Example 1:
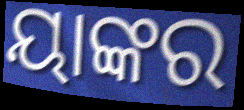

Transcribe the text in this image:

ୟାଙ୍କର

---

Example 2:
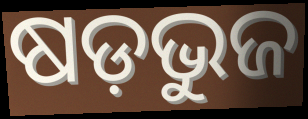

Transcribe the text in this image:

ଷଡ଼ଭୁଜ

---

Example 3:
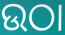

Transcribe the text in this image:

ଉଠା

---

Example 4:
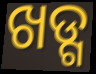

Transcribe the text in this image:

ଖଡ୍ଗ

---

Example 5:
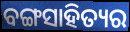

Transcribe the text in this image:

ବଙ୍ଗସାହିତ୍ୟର